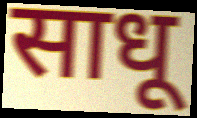
साधू